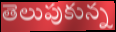
తెలుపుకున్న